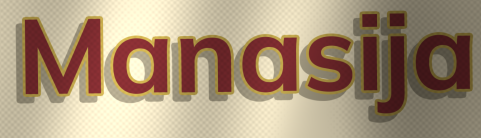
Manasija